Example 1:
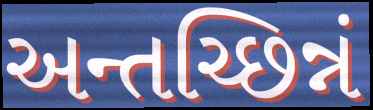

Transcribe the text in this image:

અન્તચ્છિન્નં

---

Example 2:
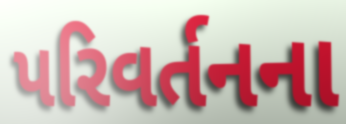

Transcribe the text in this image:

પરિવર્તનના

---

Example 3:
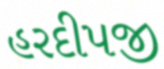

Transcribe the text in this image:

હરદીપજી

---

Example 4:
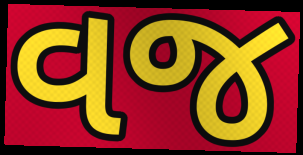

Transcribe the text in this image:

વજ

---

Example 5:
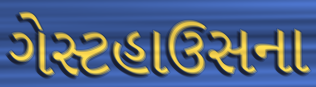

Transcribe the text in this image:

ગેસ્ટહાઉસના